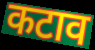
कटाव